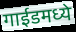
गाईडमध्ये